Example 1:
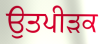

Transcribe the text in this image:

ਉਤਪੀੜਕ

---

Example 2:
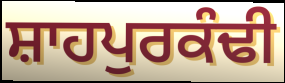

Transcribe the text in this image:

ਸ਼ਾਹਪੁਰਕੰਢੀ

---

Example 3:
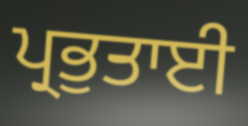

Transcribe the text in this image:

ਪ੍ਰਭੁਤਾਈ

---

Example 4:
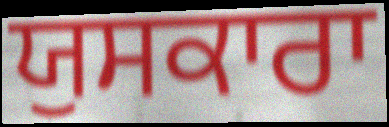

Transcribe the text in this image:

ਯੁਸਕਾਰਾ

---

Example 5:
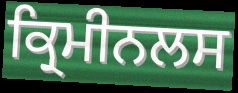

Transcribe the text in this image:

ਕ੍ਰਿਮੀਨਲਸ